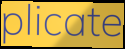
plicate